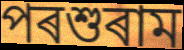
পৰশুৰাম